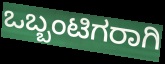
ಒಬ್ಬಂಟಿಗರಾಗಿ